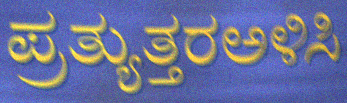
ಪ್ರತ್ಯುತ್ತರಅಳಿಸಿ